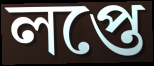
লপ্তে